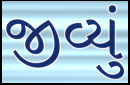
જીવ્યું